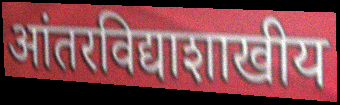
आंतरविद्याशाखीय